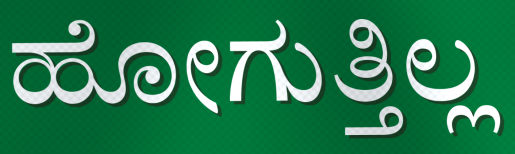
ಹೋಗುತ್ತಿಲ್ಲ